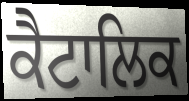
ਕੈਟਾਲਿਕ